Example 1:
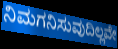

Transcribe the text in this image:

ನಿಮಗನಿಸುವುದಿಲ್ಲವೇ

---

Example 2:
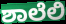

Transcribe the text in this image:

ಶಾಲೆಲಿ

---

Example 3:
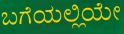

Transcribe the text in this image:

ಬಗೆಯಲ್ಲಿಯೇ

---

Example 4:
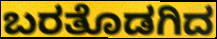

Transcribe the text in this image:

ಬರತೊಡಗಿದ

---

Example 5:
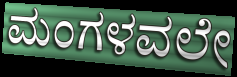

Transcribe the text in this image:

ಮಂಗಳವಲೇ